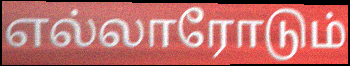
எல்லாரோடும்